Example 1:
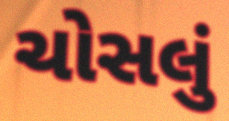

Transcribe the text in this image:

ચોસલું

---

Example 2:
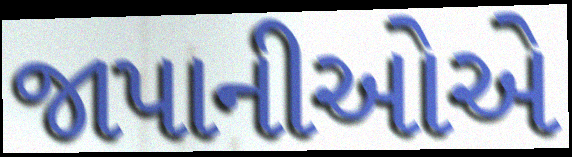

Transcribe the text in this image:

જાપાનીઓએ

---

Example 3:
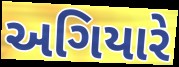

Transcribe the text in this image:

અગિયારે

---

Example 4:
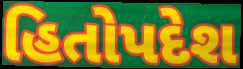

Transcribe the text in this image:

હિતોપદેશ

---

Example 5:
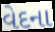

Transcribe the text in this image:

વેદના